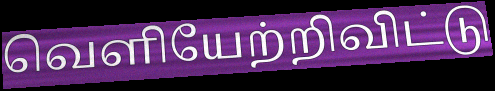
வெளியேற்றிவிட்டு